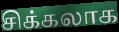
சிக்கலாக